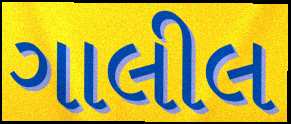
ગાલીલ